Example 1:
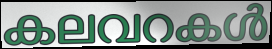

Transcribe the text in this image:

കലവറകൾ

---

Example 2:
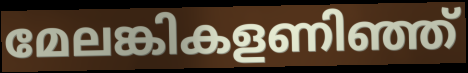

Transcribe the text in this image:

മേലങ്കികളണിഞ്ഞ്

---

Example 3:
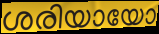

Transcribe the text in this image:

ശരിയായോ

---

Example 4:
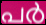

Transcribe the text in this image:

പർ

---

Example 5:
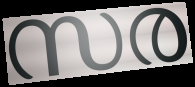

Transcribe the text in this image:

സര